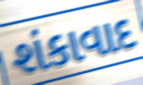
શંકાવાદ